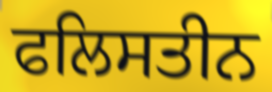
ਫਲਿਸਤੀਨ